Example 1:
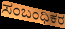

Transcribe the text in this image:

ಸಂಬಂಧಿಕರ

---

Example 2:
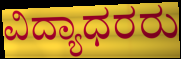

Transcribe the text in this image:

ವಿದ್ಯಾಧರರು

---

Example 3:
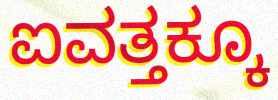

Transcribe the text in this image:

ಐವತ್ತಕ್ಕೂ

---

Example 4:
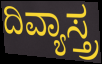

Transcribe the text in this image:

ದಿವ್ಯಾಸ್ತ್ರ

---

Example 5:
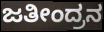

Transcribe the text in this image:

ಜತೀಂದ್ರನ